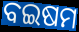
ବଇଷମ